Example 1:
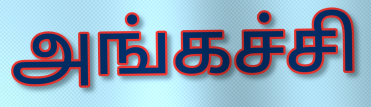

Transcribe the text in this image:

அங்கச்சி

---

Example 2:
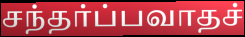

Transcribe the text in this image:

சந்தர்ப்பவாதச்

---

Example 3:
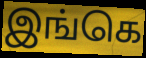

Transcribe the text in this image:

இங்கெ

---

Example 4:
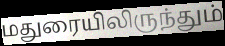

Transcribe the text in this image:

மதுரையிலிருந்தும்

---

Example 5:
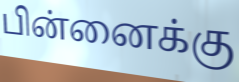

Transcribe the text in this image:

பின்னைக்கு